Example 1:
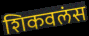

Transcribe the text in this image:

शिकवलंस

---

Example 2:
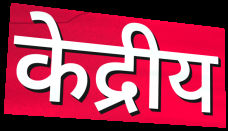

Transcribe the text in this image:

केद्रीय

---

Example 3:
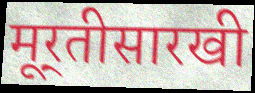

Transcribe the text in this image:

मूर्तीसारखी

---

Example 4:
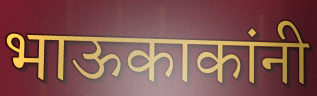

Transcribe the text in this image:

भाऊकाकांनी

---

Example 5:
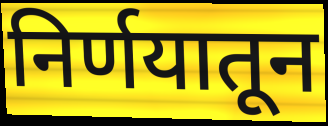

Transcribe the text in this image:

निर्णयातून